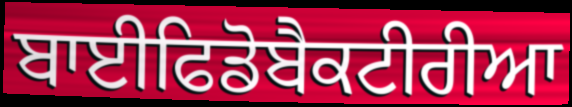
ਬਾਈਫਿਡੋਬੈਕਟੀਰੀਆ